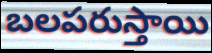
బలపరుస్తాయి